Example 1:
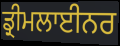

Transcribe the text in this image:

ਡ੍ਰੀਮਲਾਈਨਰ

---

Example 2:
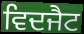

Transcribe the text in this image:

ਵਿਦਜੈਟ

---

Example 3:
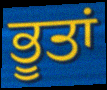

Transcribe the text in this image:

ਭੂਤਾਂ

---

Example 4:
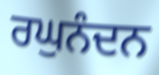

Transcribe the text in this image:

ਰਘੁਨੰਦਨ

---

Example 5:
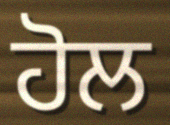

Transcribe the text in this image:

ਹੋਲ